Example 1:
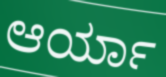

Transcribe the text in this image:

ಆರ್ಯಾ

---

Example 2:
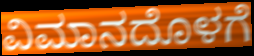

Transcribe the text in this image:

ವಿಮಾನದೊಳಗೆ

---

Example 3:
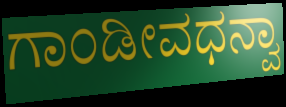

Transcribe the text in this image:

ಗಾಂಡೀವಧನ್ವಾ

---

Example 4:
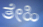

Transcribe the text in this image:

ತೇಹಿ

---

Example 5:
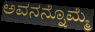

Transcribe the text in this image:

ಅವನನ್ನೊಮ್ಮೆ